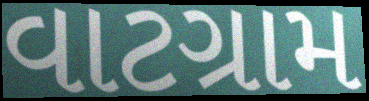
વાટગ્રામ